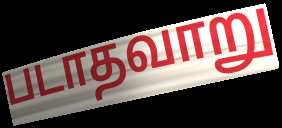
படாதவாறு